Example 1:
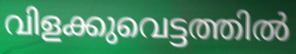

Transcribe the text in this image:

വിളക്കുവെട്ടത്തിൽ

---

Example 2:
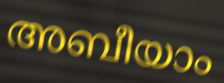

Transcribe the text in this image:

അബീയാം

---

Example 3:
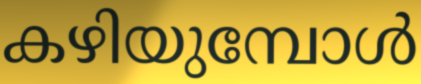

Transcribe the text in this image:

കഴിയുമ്പോൾ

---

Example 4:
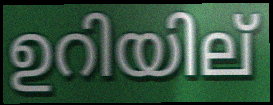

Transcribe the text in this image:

ഉറിയില്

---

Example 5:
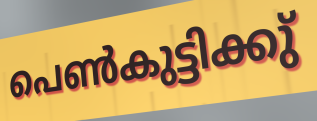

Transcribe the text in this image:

പെൺകുട്ടിക്കു്